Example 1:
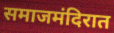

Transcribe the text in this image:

समाजमंदिरात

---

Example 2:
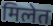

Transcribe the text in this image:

मिलेत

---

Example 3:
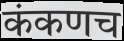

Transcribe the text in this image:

कंकणच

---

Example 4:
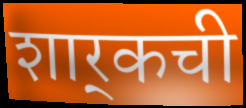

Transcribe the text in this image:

शार्कची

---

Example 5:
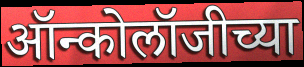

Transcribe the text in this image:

ऑन्कोलॉजीच्या